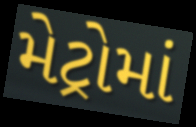
મેટ્રોમાં